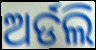
ଅର୍ଡଲି